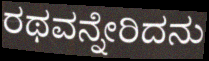
ರಥವನ್ನೇರಿದನು